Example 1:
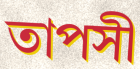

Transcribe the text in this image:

তাপসী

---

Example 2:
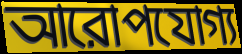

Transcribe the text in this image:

আরোপযোগ্য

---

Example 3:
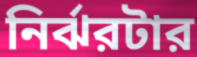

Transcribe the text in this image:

নির্ঝরটার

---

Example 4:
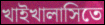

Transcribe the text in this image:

খাইখালাসিতে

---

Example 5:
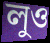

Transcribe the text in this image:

লুও